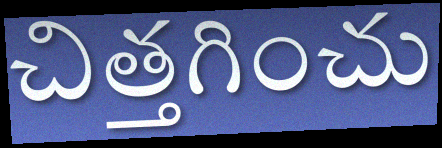
చిత్తగించు